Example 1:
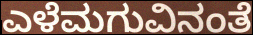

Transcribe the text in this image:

ಎಳೆಮಗುವಿನಂತೆ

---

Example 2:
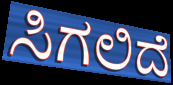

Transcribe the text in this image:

ಸಿಗಲಿದೆ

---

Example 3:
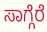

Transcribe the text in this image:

ಸಾಗ್ಗೆರೆ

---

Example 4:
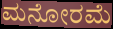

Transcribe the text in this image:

ಮನೋರಮೆ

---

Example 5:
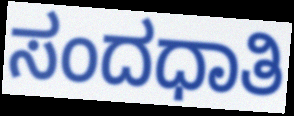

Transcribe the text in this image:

ಸಂದಧಾತಿ